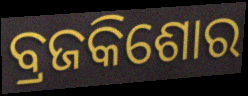
ବ୍ରଜକିଶୋର